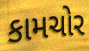
કામચોર